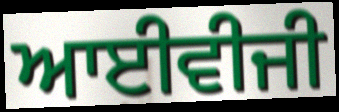
ਆਈਵੀਜੀ